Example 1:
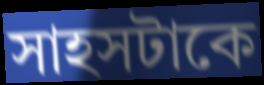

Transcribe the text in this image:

সাহসটাকে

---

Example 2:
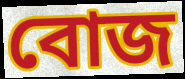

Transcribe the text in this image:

বোজ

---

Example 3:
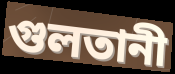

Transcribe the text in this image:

গুলতানী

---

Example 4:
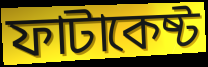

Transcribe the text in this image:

ফাটাকেষ্ট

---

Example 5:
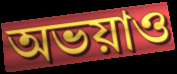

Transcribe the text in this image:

অভয়াও